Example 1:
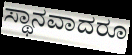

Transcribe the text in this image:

ಸ್ಥಾನವಾದರೂ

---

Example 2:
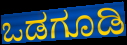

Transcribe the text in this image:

ಒಡಗೂಡಿ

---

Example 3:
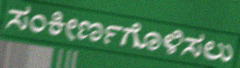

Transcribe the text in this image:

ಸಂಕೀರ್ಣಗೊಳಿಸಲು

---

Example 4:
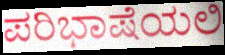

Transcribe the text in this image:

ಪರಿಭಾಷೆಯಲಿ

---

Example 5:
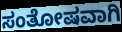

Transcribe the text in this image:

ಸಂತೋಷವಾಗಿ